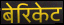
बेरिकेट